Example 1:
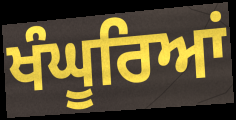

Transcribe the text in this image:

ਖੰਘੂਰਿਆਂ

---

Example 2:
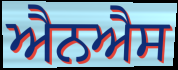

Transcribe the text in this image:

ਐਨਐਸ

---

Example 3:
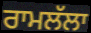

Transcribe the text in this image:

ਰਾਮਲੱਲਾ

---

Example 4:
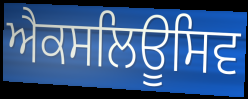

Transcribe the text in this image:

ਐਕਸਲਿਊਸਿਵ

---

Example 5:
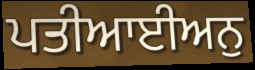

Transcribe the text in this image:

ਪਤੀਆਈਅਨੁ